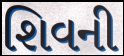
શિવની